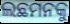
ଲଛମନକୁ